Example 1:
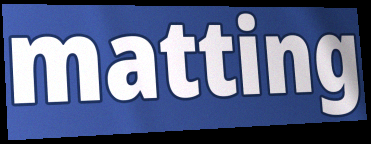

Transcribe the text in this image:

matting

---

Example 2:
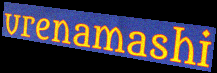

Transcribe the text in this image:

urenamashi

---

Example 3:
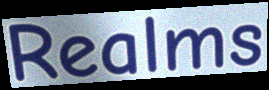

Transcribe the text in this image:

Realms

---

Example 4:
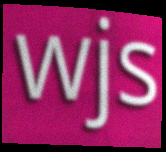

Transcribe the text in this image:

wjs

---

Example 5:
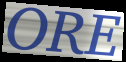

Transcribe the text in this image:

ORE